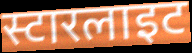
स्टारलाइट